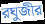
রঘুজীর